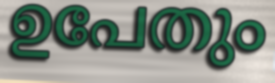
ഉപേതും